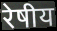
रेषीय